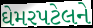
ઘેમરપટેલને